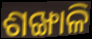
ଶଙ୍ଖାଳି